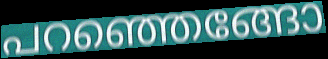
പറഞ്ഞെങ്ങോ